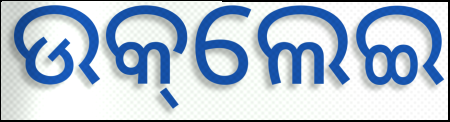
ଉକ୍‌ଲେଇ